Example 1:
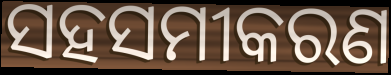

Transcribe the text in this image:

ସହସମୀକରଣ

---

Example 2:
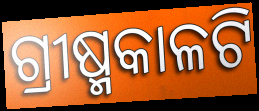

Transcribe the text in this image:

ଗ୍ରୀଷ୍ମକାଳଟି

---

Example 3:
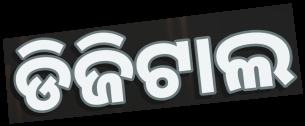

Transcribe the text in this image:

ଡିଜିଟାଲ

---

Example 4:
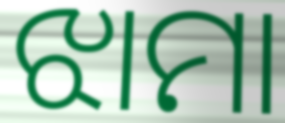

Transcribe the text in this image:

ଝାମା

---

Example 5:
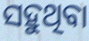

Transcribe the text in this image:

ସହୁଥିବା